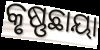
କୃଷ୍ଣଛାୟା